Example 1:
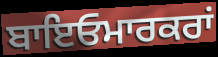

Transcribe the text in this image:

ਬਾਇਓਮਾਰਕਰਾਂ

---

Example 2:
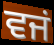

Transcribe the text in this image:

ਵਜਂ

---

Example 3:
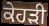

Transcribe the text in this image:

ਕੇਹੜੀ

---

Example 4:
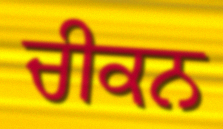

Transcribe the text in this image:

ਚੀਕਨ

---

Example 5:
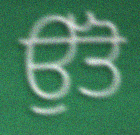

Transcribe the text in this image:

ਉੱਤੋ